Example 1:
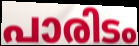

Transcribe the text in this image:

പാരിടം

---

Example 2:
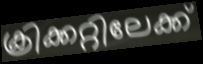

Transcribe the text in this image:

ക്രിക്കറ്റിലേക്ക്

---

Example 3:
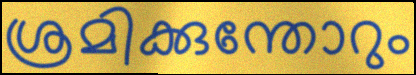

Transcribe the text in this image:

ശ്രമിക്കുന്തോറും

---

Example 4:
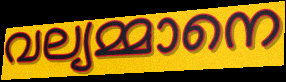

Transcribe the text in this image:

വല്യമ്മാനെ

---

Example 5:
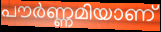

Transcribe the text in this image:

പൗർണ്ണമിയാണ്